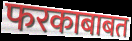
फरकाबाबत